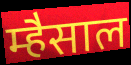
म्हैसाल